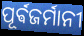
ପୂର୍ଵଜର୍ମାନୀ